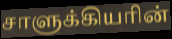
சாளுக்கியரின்